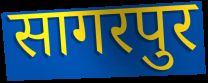
सागरपुर